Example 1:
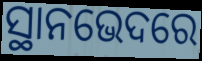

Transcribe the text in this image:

ସ୍ଥାନଭେଦରେ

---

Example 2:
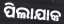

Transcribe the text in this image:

ପିଲାଯାକ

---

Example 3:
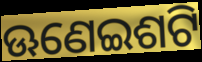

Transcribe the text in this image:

ଊଣେଇଶଟି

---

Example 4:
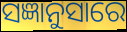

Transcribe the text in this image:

ସଜ୍ଞାନୁସାରେ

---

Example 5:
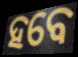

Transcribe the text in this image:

ହବେ